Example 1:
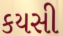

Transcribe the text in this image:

કયસી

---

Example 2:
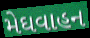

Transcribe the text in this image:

મેઘવાહન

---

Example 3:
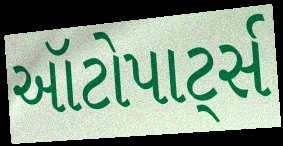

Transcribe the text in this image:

ઑટોપાર્ટ્સ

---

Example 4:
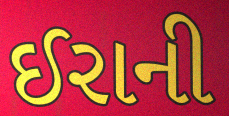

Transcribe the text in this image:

ઈરાની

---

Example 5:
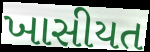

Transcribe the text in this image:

ખાસીયત